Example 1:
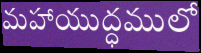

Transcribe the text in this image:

మహాయుద్ధములో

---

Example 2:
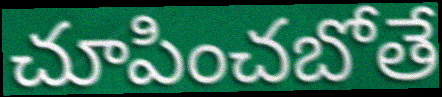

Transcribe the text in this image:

చూపించబోతే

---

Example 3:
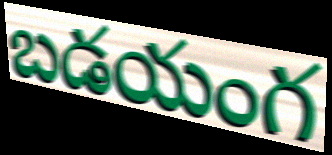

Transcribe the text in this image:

బడయంగ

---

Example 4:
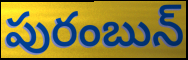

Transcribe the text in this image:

పురంబున్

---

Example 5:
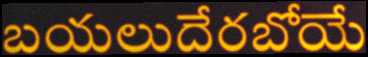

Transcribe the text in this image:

బయలుదేరబోయే